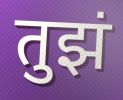
तुझं